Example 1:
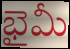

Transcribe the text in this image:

భైమీ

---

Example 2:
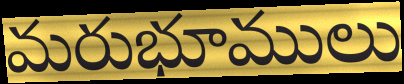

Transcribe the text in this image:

మరుభూములు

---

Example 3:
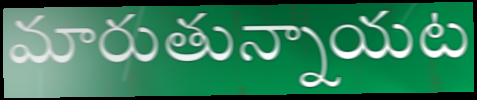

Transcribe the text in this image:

మారుతున్నాయట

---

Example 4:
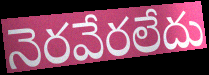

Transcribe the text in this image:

నెరవేరలేదు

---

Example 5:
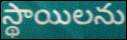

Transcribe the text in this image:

స్థాయిలను